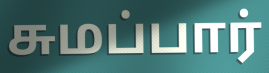
சுமப்பார்